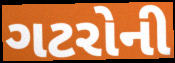
ગટરોની